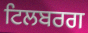
ਟਿਲਬਰਗ